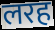
लरह